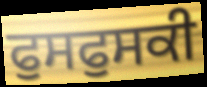
ਫੁਸਫੁਸਕੀ